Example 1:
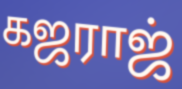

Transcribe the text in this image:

கஜராஜ்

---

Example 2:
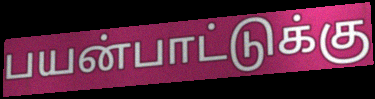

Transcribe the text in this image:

பயன்பாட்டுக்கு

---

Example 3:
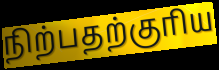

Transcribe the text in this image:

நிற்பதற்குரிய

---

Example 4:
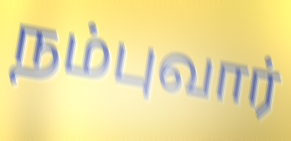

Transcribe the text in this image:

நம்புவார்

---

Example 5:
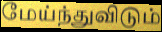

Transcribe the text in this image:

மேய்ந்துவிடும்